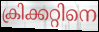
ക്രിക്കറ്റിനെ